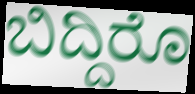
ಬಿದ್ದಿರೊ